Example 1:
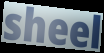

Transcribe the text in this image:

sheel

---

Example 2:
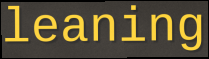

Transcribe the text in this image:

leaning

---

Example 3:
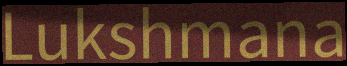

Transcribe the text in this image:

Lukshmana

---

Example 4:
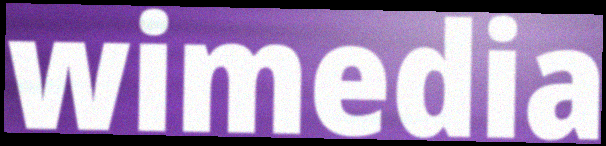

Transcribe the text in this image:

wimedia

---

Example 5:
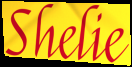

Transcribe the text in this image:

Shelie